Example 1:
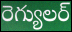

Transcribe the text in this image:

రెగ్యులర్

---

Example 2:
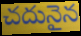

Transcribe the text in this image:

చదునైన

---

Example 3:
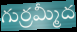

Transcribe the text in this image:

గుర్రమ్మీద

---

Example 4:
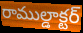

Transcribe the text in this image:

రాముల్డాక్టర్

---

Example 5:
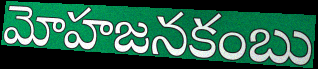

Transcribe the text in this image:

మోహజనకంబు